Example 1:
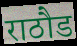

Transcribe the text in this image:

राठौड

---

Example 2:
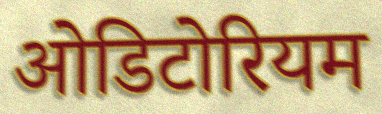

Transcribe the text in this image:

ओडिटोरियम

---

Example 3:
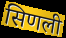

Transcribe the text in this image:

सिणली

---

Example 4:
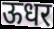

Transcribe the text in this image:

ऊधर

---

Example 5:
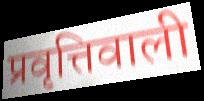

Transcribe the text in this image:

प्रवृत्तिवाली